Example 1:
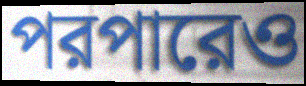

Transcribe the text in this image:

পরপারেও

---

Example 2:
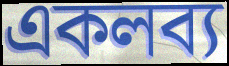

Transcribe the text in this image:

একলব্য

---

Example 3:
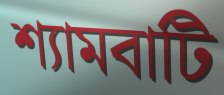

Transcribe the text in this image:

শ্যামবাটি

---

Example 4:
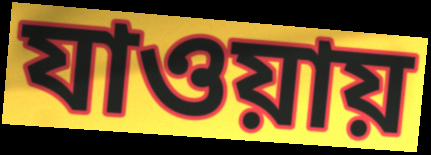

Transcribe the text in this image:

যাওয়ায়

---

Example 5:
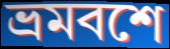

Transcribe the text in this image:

ভ্রমবশে